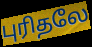
புரிதலே